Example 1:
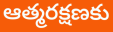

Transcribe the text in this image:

ఆత్మరక్షణకు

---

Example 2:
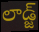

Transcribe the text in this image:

లాడ్జ్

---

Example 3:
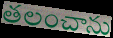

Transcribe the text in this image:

తలంచాను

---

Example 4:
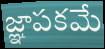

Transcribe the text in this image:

జ్ఞాపకమే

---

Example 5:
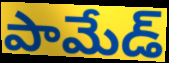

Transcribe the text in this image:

పామేడ్